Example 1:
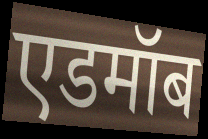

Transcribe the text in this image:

एडमॉब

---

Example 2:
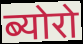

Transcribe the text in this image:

ब्योरो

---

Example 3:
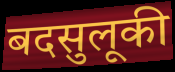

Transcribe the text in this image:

बदसुलूकी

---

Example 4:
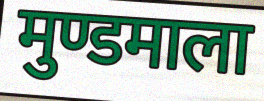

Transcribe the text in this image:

मुण्डमाला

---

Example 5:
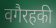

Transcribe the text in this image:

वगैरहकी